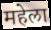
महेला